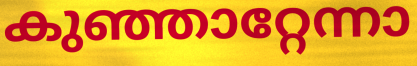
കുഞ്ഞാറ്റേന്നാ